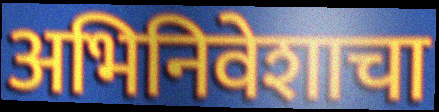
अभिनिवेशाचा